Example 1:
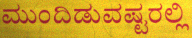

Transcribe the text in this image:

ಮುಂದಿಡುವಷ್ಟರಲ್ಲಿ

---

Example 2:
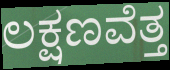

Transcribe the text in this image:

ಲಕ್ಷಣವೆತ್ತ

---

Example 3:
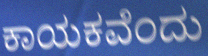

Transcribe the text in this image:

ಕಾಯಕವೆಂದು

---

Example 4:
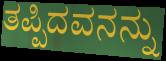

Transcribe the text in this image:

ತಪ್ಪಿದವನನ್ನು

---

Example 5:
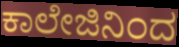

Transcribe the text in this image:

ಕಾಲೇಜಿನಿಂದ